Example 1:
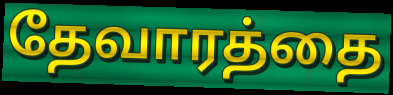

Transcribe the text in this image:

தேவாரத்தை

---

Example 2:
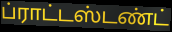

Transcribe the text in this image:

ப்ராட்டஸ்டண்ட்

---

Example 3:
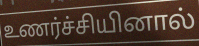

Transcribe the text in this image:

உணர்ச்சியினால்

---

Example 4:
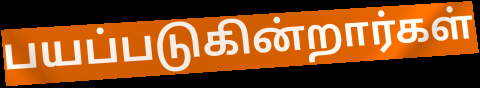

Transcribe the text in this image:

பயப்படுகின்றார்கள்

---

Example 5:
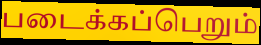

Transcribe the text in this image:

படைக்கப்பெறும்